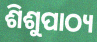
ଶିଶୁପାଠ୍ୟ